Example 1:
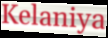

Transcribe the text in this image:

Kelaniya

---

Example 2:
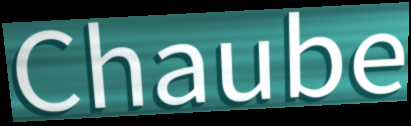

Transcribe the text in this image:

Chaube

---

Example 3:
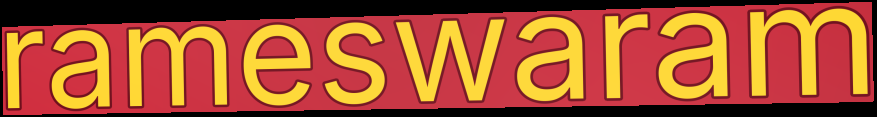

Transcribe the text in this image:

rameswaram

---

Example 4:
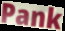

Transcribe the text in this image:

Pank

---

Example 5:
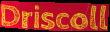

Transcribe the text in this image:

Driscoll